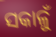
ସକାଳୁଁ